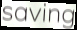
saving